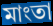
মাংতা